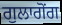
ਗੁਲਾਗੋਂਗ